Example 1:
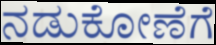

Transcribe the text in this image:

ನಡುಕೋಣೆಗೆ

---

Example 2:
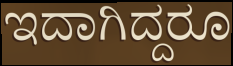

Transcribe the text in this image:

ಇದಾಗಿದ್ದರೂ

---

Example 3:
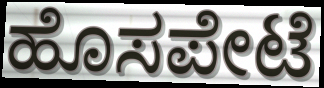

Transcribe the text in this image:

ಹೊಸಪೇಟೆ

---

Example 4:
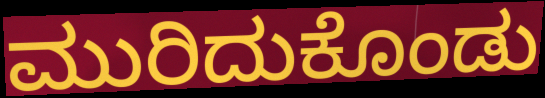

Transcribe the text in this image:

ಮುರಿದುಕೊಂಡು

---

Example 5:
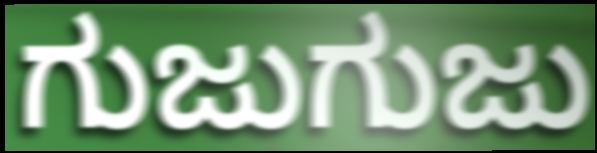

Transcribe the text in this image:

ಗುಜುಗುಜು